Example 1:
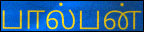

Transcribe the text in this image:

பால்பன்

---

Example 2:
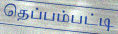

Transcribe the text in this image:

தெப்பம்பட்டி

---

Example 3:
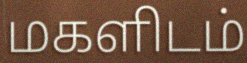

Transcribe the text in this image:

மகளிடம்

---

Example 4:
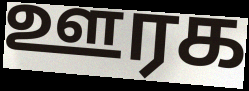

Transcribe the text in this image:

ஊரக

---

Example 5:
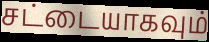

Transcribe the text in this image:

சட்டையாகவும்